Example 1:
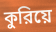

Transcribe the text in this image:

কুরিয়ে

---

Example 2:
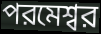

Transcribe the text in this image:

পরমেশ্বর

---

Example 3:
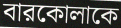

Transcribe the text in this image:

বারকোলাকে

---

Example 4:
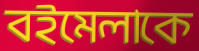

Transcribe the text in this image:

বইমেলাকে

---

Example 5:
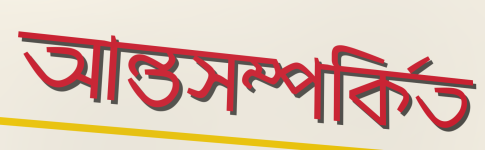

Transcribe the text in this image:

আন্তসম্পর্কিত